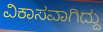
ವಿಕಾಸವಾಗಿದ್ದು